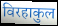
विरहाकुल